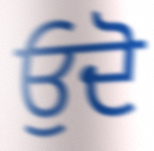
ਓੁਦੋ